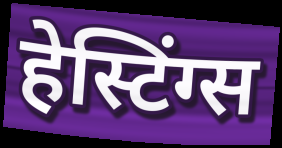
हेस्टिंग्स